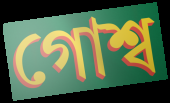
গোশ্ব